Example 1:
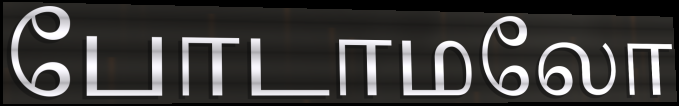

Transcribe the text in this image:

போடாமலோ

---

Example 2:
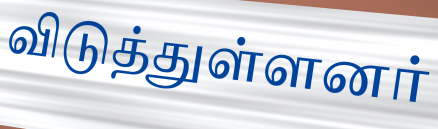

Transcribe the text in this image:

விடுத்துள்ளனர்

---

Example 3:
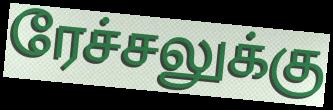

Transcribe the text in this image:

ரேச்சலுக்கு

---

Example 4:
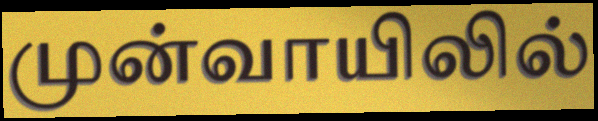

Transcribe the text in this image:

முன்வாயிலில்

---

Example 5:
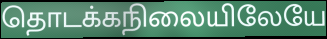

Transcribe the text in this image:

தொடக்கநிலையிலேயே